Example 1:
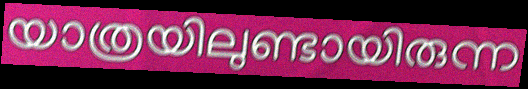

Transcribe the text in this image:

യാത്രയിലുണ്ടായിരുന്ന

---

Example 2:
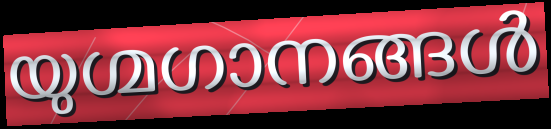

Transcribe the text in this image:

യുഗ്മഗാനങ്ങൾ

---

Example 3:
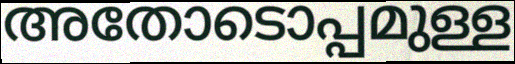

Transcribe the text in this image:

അതോടൊപ്പമുള്ള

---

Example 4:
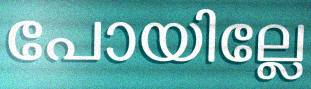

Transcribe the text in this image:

പോയില്ലേ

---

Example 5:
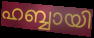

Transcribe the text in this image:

ഹബ്ബായി